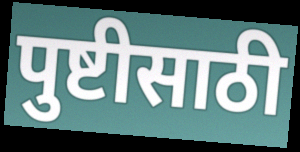
पुष्टीसाठी